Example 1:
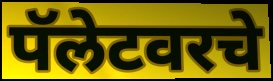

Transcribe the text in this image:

पॅलेटवरचे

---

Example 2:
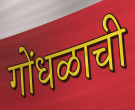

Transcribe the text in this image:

गोंधळाची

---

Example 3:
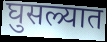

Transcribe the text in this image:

घुसल्यात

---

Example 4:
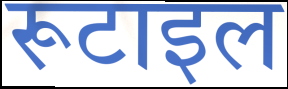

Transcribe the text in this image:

रूटाइल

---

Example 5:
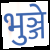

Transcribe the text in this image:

भुञ्जे